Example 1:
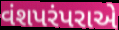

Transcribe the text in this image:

વંશપરંપરાએ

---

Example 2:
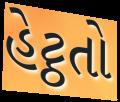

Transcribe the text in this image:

હેટ્ઠતો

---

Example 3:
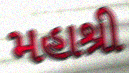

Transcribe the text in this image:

મહાશ્રી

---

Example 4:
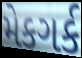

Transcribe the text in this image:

મેકગર્ક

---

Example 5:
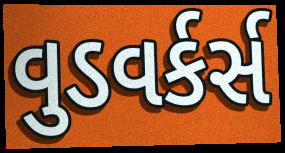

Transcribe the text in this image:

વુડવર્કર્સ